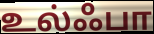
உல்ஃபா